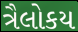
ત્રૈલોકય